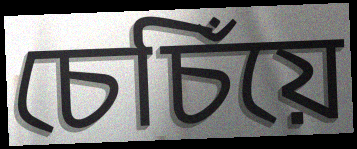
চেচিঁয়ে